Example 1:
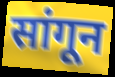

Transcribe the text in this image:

सांगून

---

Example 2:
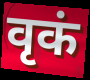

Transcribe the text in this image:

वृकं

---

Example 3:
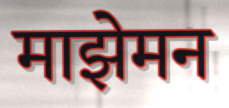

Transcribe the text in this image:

माझेमन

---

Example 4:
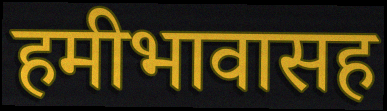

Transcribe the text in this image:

हमीभावासह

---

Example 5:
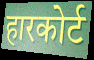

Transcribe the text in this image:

हारकोर्ट